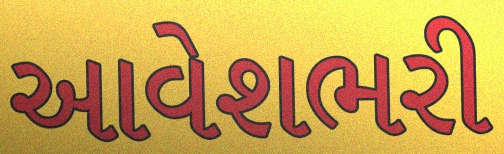
આવેશભરી